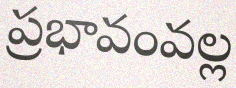
ప్రభావంవల్ల